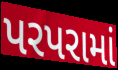
પરપરામાં